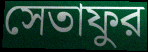
সেতাফুর